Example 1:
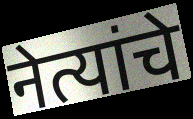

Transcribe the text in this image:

नेत्यांचे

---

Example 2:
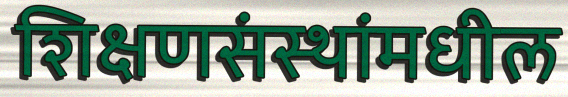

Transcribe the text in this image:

शिक्षणसंस्थांमधील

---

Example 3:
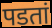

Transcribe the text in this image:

पडतां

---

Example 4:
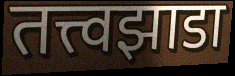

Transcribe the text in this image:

तत्त्वझाडा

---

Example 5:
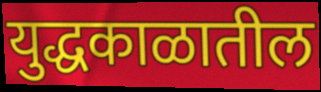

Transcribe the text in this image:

युद्धकाळातील